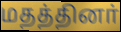
மதத்தினர்